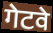
गेटवे